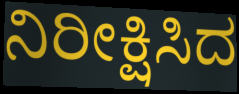
ನಿರೀಕ್ಷಿಸಿದ